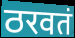
ठरवतं